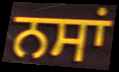
ਨਸਾਂ